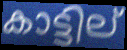
കാട്ടില്